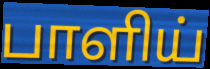
பாளிய்